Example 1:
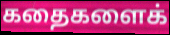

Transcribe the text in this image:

கதைகளைக்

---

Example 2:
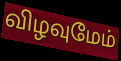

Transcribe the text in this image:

விழவுமேம்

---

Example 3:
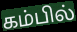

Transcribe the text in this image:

கம்பில்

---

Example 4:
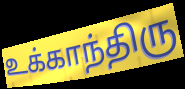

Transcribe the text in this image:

உக்காந்திரு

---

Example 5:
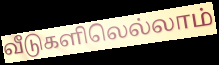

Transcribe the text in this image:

வீடுகளிலெல்லாம்